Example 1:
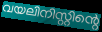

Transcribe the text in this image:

വയലിനിസ്റ്റിന്റെ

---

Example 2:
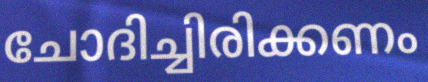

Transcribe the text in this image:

ചോദിച്ചിരിക്കണം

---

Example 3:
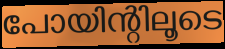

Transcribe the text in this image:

പോയിന്റിലൂടെ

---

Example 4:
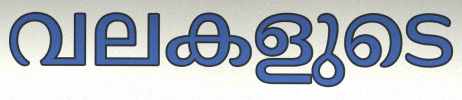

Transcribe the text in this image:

വലകളുടെ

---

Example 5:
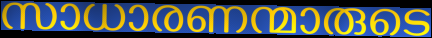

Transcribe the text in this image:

സാധാരണന്മാരുടെ